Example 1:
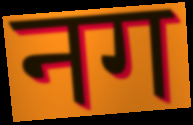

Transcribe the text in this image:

नग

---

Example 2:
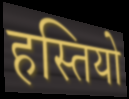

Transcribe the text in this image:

हस्तियो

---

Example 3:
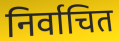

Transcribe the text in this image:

निर्वाचित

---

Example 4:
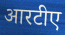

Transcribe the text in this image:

आरटीए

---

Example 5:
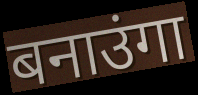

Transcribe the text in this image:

बनाउंगा